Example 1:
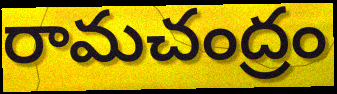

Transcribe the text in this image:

రామచంద్రం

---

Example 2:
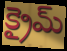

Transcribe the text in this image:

క్రైమ్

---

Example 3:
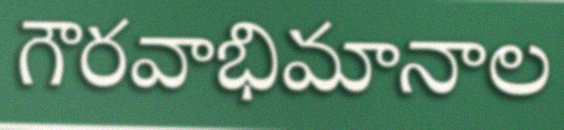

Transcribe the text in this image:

గౌరవాభిమానాల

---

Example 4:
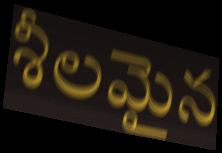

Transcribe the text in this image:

శీలమైన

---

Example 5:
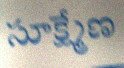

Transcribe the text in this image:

సూక్ష్మేణ